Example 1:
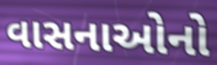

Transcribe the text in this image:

વાસનાઓનો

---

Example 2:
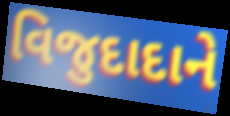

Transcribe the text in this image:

વિજુદાદાને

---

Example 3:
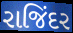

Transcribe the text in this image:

રાજિંદર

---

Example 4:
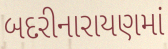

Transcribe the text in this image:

બદરીનારાયણમાં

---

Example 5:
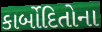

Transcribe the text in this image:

કાર્બોદિતોના